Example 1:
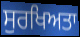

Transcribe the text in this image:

ਸੁਰਖਿਅਤਾ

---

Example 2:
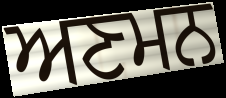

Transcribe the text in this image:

ਅਣਮਨ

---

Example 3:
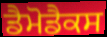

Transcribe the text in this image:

ਡੈਮੋਡੈਕਸ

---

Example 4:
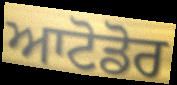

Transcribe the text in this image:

ਆਟੋਡੋਰ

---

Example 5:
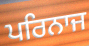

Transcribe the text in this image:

ਪਰਿਨਾਜ